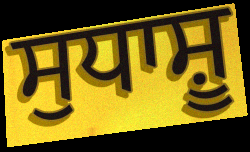
ਸੁਧਾਸ਼ੂ